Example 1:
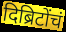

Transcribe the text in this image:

दिब्रिटोंचं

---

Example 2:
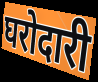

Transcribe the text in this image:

घरोदारी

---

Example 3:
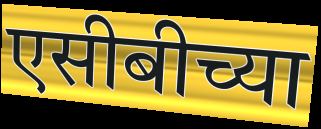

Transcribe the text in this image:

एसीबीच्या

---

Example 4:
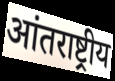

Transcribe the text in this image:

आंतराष्ट्रीय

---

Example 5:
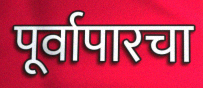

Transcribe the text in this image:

पूर्वापारचा